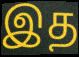
இத